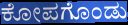
ಕೋಪಗೊಂಡು